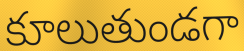
కూలుతుండగా